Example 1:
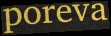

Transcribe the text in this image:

poreva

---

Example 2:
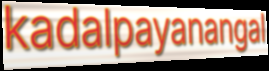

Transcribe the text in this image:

kadalpayanangal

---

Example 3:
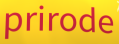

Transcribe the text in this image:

prirode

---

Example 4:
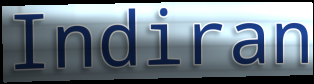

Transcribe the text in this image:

Indiran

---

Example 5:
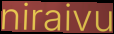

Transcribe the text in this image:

niraivu